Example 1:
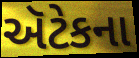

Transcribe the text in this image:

ઍટેકના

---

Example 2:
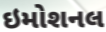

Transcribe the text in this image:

ઇમોશનલ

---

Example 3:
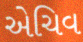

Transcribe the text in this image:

એચિવ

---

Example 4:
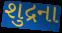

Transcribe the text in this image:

શુદ્રના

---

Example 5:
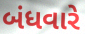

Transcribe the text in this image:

બંધવારે